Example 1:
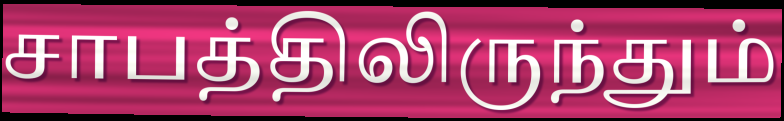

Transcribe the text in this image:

சாபத்திலிருந்தும்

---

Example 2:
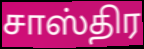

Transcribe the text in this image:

சாஸ்திர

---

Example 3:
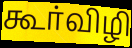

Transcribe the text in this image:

கூர்விழி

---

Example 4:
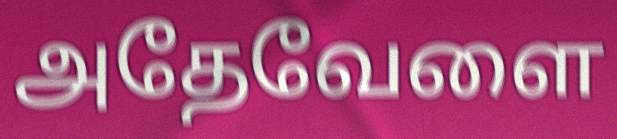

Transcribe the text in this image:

அதேவேளை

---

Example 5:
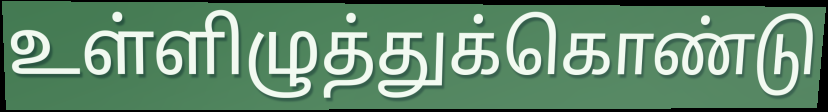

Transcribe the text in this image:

உள்ளிழுத்துக்கொண்டு